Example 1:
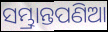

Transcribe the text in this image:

ସମ୍ଭ୍ରାନ୍ତପଣିଆ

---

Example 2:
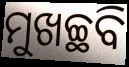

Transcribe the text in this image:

ମୁଖଚ୍ଛବି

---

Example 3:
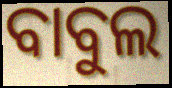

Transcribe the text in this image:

ବାବୁଲ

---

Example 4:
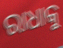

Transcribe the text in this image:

ରାଧାକୁ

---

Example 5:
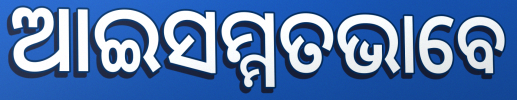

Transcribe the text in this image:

ଆଇସମ୍ମତଭାବେ